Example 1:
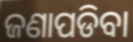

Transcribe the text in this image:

ଜଣାପଡିବା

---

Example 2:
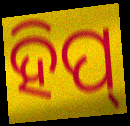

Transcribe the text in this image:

ହିପ୍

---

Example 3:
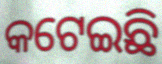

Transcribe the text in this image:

କଟେଇଛି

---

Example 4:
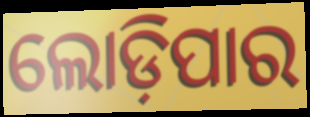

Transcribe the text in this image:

ଲୋଡ଼ିପାର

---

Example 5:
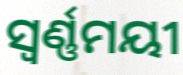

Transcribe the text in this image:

ସ୍ୱର୍ଣ୍ଣମୟୀ